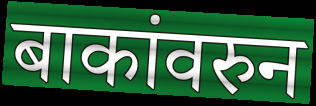
बाकांवरुन